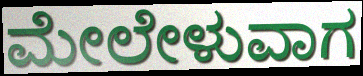
ಮೇಲೇಳುವಾಗ